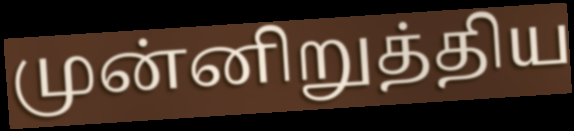
முன்னிறுத்திய